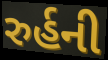
રુર્હની